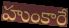
హుంకారే